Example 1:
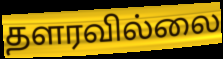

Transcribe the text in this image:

தளரவில்லை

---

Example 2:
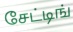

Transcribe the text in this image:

சேட்டிங்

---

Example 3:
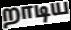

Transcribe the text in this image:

றாடிய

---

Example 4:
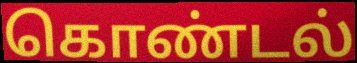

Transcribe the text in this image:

கொண்டல்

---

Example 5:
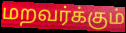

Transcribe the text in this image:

மறவர்க்கும்